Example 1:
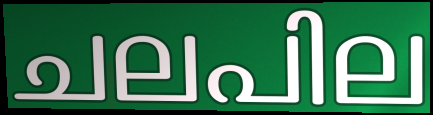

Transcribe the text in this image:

ചലപില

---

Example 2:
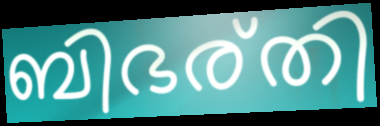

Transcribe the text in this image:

ബിഭര്തി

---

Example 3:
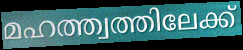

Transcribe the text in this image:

മഹത്ത്വത്തിലേക്ക്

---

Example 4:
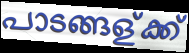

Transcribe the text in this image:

പാടങ്ങള്ക്ക്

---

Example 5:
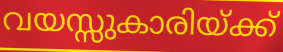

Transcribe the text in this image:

വയസ്സുകാരിയ്ക്ക്